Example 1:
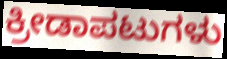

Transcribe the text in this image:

ಕ್ರೀಡಾಪಟುಗಳು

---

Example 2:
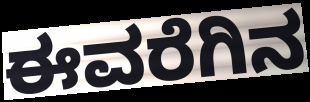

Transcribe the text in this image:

ಈವರೆಗಿನ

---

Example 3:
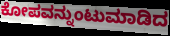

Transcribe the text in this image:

ಕೋಪವನ್ನುಂಟುಮಾಡಿದ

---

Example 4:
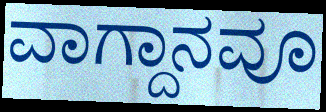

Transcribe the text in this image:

ವಾಗ್ದಾನವೂ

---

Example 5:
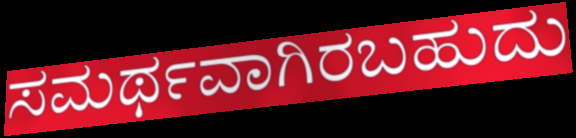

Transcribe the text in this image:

ಸಮರ್ಥವಾಗಿರಬಹುದು